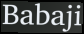
Babaji